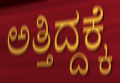
ಅತ್ತಿದ್ದಕ್ಕೆ